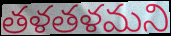
తళతళమని